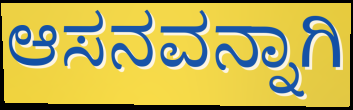
ಆಸನವನ್ನಾಗಿ